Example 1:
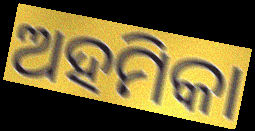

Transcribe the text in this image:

ଅହମିକା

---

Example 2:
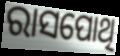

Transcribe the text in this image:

ରାସପୋଥି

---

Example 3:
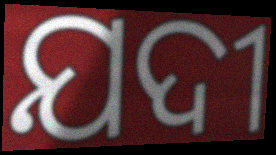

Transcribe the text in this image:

ଯଦୀ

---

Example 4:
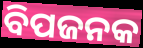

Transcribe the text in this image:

ବିପଜନକ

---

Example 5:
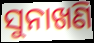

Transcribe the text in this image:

ସୁନାଖଣି